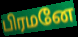
பிரமனே